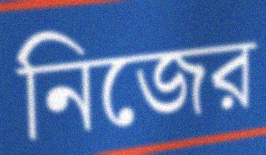
নিজের